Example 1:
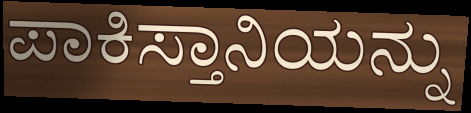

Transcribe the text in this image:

ಪಾಕಿಸ್ತಾನಿಯನ್ನು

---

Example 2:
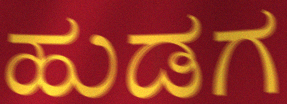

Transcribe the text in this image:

ಹುಡಗ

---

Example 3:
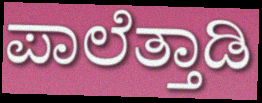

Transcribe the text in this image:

ಪಾಲೆತ್ತಾಡಿ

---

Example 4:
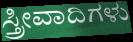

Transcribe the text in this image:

ಸ್ತ್ರೀವಾದಿಗಳು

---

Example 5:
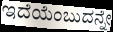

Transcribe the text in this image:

ಇದೆಯೆಂಬುದನ್ನೇ